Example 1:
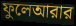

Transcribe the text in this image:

ফুলেআরার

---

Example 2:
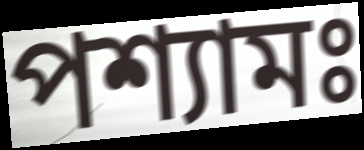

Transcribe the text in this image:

পশ্যামঃ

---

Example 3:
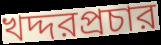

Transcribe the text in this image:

খদ্দরপ্রচার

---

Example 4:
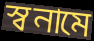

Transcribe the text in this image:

স্বনামে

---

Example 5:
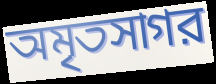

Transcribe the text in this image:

অমৃতসাগর